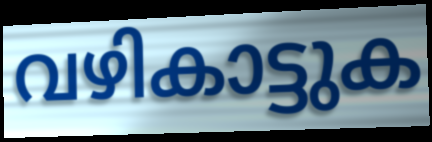
വഴികാട്ടുക